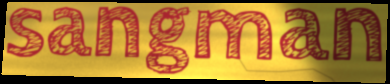
sangman